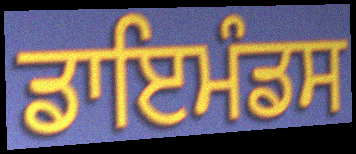
ਡਾਇਮੰਡਸ